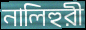
নালিহুরী